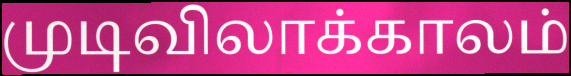
முடிவிலாக்காலம்